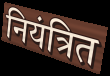
नियंत्रित